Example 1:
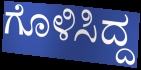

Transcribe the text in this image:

ಗೊಳಿಸಿದ್ದ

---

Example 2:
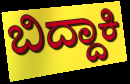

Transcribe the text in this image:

ಬಿದ್ದಾಕಿ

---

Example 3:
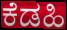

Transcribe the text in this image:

ಕೆಡಹಿ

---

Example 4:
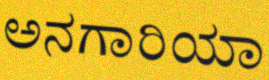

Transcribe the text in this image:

ಅನಗಾರಿಯಾ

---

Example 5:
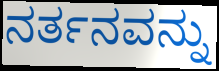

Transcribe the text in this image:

ನರ್ತನವನ್ನು